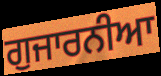
ਗੁਜਾਰਨੀਆ